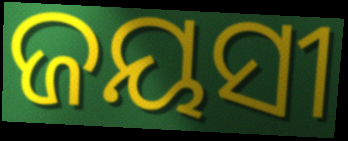
ଜୟସୀ